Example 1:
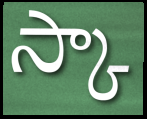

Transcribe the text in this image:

స్కా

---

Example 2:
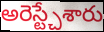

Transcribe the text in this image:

అరెస్ట్చేశారు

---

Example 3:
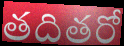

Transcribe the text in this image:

తదితరో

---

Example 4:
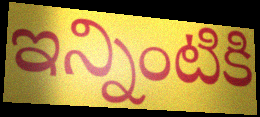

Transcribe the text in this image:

ఇన్నింటికి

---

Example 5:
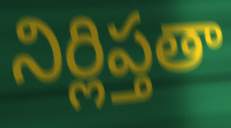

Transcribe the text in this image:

నిర్లిప్తతా